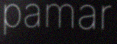
pamar